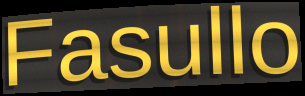
Fasullo